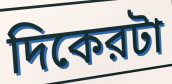
দিকেরটা